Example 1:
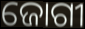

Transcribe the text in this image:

ଜୋଗୀ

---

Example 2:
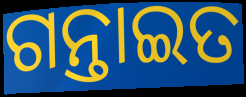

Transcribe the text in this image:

ଗନ୍ତାଇତ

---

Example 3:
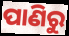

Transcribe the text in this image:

ପାଣିରୁ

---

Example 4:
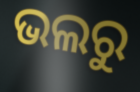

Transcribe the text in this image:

ଭଲରୁ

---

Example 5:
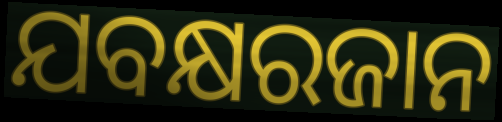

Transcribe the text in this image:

ଯବକ୍ଷରଜାନ